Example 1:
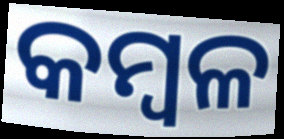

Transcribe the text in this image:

କମ୍ବଳ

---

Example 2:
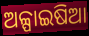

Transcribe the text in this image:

ଅଳ୍ପାଇଷିଆ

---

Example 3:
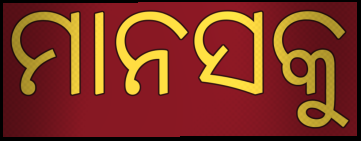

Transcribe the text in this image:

ମାନସକୁ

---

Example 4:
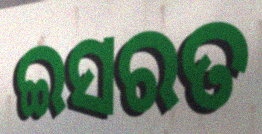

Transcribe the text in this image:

ଇସରତ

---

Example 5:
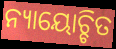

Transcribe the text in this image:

ନ୍ୟାୟୋଚ୍ଚିତ